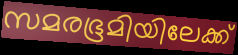
സമരഭൂമിയിലേക്ക്